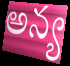
అన్య